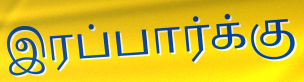
இரப்பார்க்கு